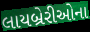
લાયબ્રેરીઓના